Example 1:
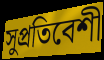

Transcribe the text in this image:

সুপ্রতিবেশী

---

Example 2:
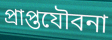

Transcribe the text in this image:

প্রাপ্তযৌবনা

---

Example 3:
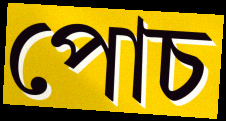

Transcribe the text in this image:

পোচ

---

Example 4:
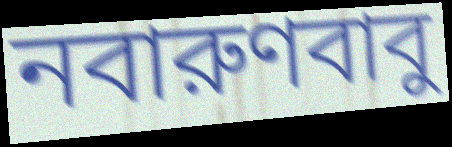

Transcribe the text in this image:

নবারুণবাবু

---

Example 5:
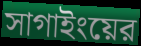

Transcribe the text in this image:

সাগাইংয়ের